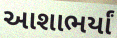
આશાભર્યાં